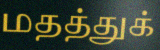
மதத்துக்